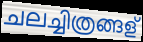
ചലച്ചിത്രങ്ങള്